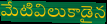
మేటివిలుకాడైన